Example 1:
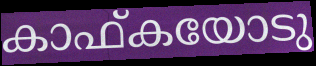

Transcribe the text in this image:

കാഫ്കയോടു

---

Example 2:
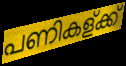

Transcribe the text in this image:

പണികള്ക്ക്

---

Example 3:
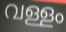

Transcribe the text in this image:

വള്ളം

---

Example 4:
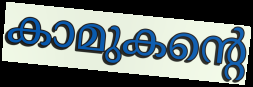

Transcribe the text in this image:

കാമുകന്റെ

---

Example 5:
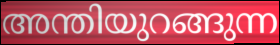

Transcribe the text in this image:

അന്തിയുറങ്ങുന്ന